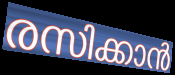
രസിക്കാൻ